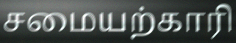
சமையற்காரி